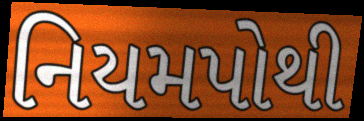
નિયમપોથી